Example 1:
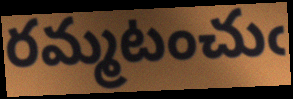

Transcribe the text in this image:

రమ్మటంచుఁ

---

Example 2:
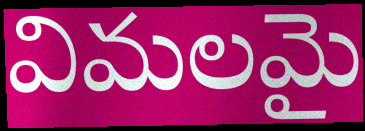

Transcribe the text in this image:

విమలమై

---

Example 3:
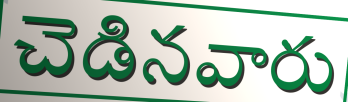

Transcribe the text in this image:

చెడినవారు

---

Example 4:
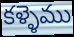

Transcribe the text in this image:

కళ్ళెము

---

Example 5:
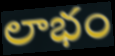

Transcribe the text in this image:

లాభం